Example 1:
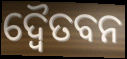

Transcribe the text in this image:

ଦ୍ବୈତବନ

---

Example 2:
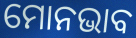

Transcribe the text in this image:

ମୋନଭାବ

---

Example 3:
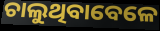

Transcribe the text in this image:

ଚାଲୁଥିବାବେଳେ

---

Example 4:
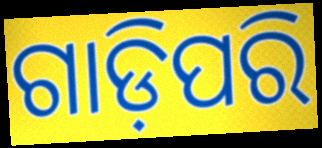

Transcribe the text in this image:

ଗାଡ଼ିପରି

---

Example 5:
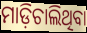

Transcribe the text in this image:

ମାଡ଼ିଚାଲିଥିବା